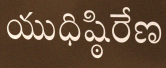
యుధిష్ఠిరేణ